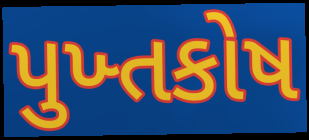
પુખ્તકોષ